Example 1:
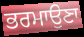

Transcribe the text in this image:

ਭਰਮਾਉਣਾ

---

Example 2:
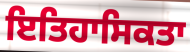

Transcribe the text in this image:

ਇਤਿਹਾਸਿਕਤਾ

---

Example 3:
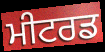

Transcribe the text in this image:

ਮੀਟਰਡ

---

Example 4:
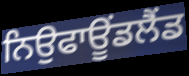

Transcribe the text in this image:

ਨਿਉਫਾਊਂਡਲੈਂਡ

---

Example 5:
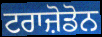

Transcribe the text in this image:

ਟਰਾਜ਼ੋਡੋਨ